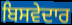
ਬਿਸਵੇਦਾਰ